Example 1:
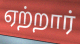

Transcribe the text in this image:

ஏற்றார்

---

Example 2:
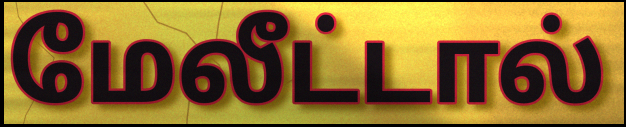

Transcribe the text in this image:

மேலீட்டால்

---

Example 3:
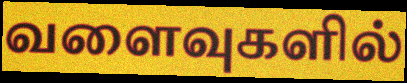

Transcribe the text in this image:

வளைவுகளில்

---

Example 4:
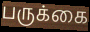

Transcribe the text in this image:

பருக்கை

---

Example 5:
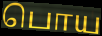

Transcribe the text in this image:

பொய